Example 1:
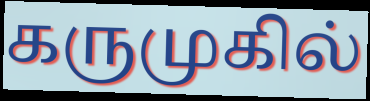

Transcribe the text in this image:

கருமுகில்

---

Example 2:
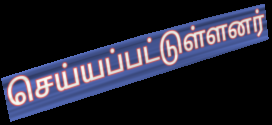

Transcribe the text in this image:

செய்யப்பட்டுள்ளனர்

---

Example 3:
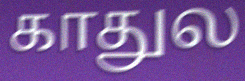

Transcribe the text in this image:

காதுல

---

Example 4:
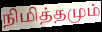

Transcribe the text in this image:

நிமித்தமும்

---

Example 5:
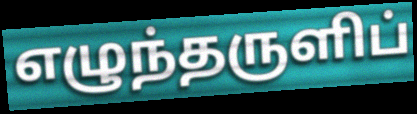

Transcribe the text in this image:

எழுந்தருளிப்